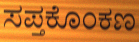
ಸಪ್ತಕೊಂಕಣ